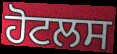
ਹੋਟਲਸ